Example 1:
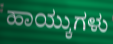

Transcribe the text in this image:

ಹಾಯ್ಕುಗಳು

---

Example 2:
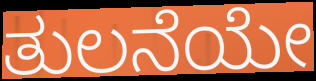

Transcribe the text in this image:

ತುಲನೆಯೇ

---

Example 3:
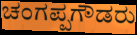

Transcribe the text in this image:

ಚಂಗಪ್ಪಗೌಡರು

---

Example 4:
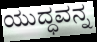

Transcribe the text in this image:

ಯುದ್ಧವನ್ನ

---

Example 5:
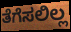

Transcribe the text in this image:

ತೆಗೆಸಲಿಲ್ಲ